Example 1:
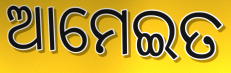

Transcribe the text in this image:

ଆମେଇତ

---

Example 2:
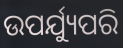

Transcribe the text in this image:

ଉପର୍ଯ୍ୟୁପରି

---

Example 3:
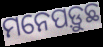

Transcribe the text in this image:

ମନେପଡ଼ୁଛ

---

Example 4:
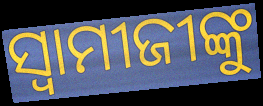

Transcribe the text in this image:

ସ୍ଵାମୀଜୀଙ୍କୁ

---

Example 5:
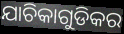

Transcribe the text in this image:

ଯାଚିକାଗୁଡିକର